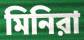
মিনিরা